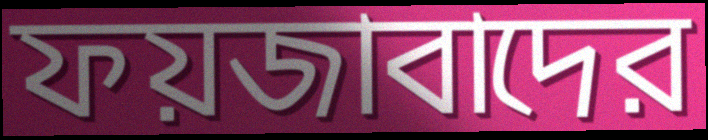
ফয়জাবাদের